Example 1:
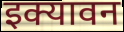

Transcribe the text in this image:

इक्यावन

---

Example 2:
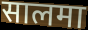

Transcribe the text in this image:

सालमा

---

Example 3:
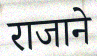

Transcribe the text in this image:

राजाने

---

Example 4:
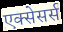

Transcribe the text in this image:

एक्सेसर्स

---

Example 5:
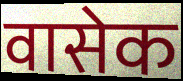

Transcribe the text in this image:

वासेक